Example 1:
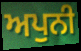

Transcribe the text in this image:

ਅਪੁਨੀ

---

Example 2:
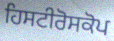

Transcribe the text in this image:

ਹਿਸਟੀਰੋਸਕੋਪ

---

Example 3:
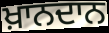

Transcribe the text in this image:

ਖ਼ਾਨਦਾਨ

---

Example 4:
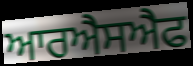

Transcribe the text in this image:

ਆਰਐਸਐਫ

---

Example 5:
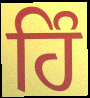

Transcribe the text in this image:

ਹਿੰ